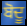
ਬੋਦੂ